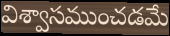
విశ్వాసముంచడమే